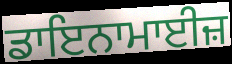
ਡਾਇਨਾਮਾਈਜ਼